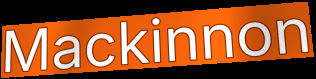
Mackinnon